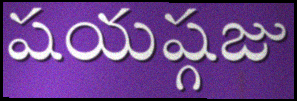
షయష్గజు